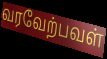
வரவேற்பவள்